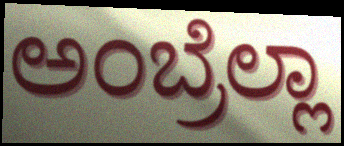
ಅಂಬ್ರೆಲ್ಲಾ